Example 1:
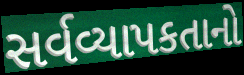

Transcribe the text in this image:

સર્વવ્યાપકતાનો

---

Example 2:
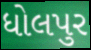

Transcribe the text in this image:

ધોલપુર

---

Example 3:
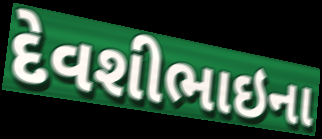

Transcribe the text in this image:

દેવશીભાઇના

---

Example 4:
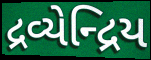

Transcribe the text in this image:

દ્રવ્યેન્દ્રિય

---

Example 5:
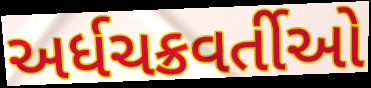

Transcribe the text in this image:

અર્ધચક્રવર્તીઓ